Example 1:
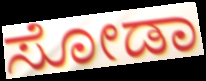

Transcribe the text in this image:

ಸೋಡಾ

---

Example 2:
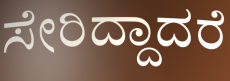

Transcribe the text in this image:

ಸೇರಿದ್ದಾದರೆ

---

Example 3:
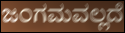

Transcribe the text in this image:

ಜಂಗಮವಲ್ಲದೆ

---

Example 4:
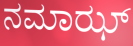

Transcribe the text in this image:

ನಮಾಝ್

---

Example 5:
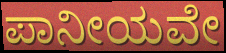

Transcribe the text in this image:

ಪಾನೀಯವೇ